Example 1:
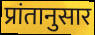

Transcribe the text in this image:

प्रांतानुसार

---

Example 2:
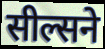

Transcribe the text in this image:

सील्सने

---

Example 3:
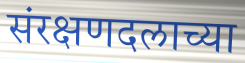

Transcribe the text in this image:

संरक्षणदलाच्या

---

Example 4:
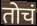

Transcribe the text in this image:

तोचं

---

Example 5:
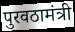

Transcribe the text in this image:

पुरवठामंत्री